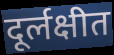
दूर्लक्षीत